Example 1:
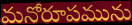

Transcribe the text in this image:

మనోరూపమును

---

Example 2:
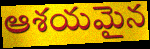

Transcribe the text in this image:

ఆశయమైన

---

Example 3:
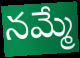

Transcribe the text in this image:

నమ్మే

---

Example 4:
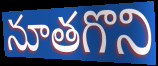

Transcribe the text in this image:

నూతగొని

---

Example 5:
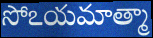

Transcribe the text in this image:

సోఽయమాత్మా